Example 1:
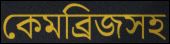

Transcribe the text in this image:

কেমব্রিজসহ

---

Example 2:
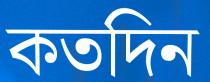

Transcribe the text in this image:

কতদিন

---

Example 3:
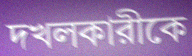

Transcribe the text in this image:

দখলকারীকে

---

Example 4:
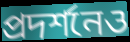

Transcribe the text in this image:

প্রদর্শনেও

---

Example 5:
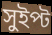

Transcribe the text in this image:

সুইপ্ট